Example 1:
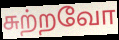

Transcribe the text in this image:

சுற்றவோ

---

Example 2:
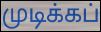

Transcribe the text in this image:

முடிக்கப்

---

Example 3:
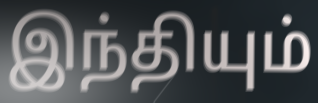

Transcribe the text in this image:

இந்தியும்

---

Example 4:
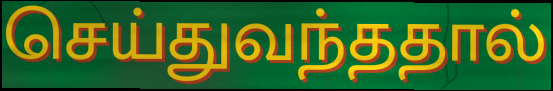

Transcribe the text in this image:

செய்துவந்ததால்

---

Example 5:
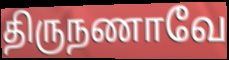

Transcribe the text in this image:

திருநணாவே